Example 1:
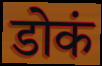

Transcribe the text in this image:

डोकं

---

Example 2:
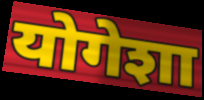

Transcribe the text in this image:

योगेशा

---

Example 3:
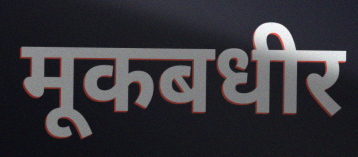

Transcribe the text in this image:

मूकबधीर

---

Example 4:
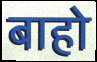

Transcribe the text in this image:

बाहो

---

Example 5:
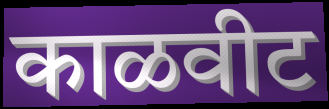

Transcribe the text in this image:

काळवीट